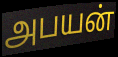
அபயன்